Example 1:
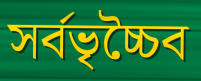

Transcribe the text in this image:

সর্বভৃচ্চৈব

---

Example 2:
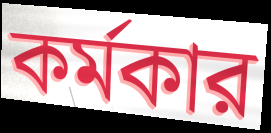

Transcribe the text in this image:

কর্মকার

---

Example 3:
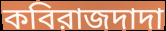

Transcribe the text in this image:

কবিরাজদাদা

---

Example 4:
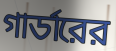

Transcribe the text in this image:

গার্ডারের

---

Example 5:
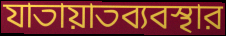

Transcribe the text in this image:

যাতায়াতব্যবস্থার